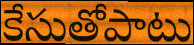
కేసుతోపాటు